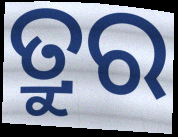
ତ୍ରୁର